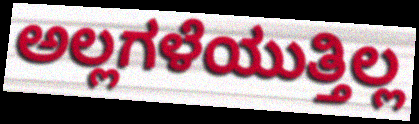
ಅಲ್ಲಗಳೆಯುತ್ತಿಲ್ಲ